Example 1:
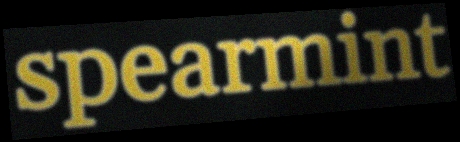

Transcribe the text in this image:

spearmint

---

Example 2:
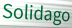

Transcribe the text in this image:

Solidago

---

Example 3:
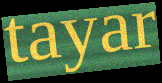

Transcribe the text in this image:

tayar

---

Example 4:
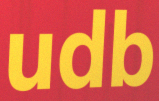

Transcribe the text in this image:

udb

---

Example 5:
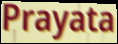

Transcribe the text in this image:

Prayata